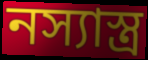
নস্যাস্ত্র